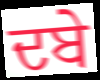
ਦਬੇ